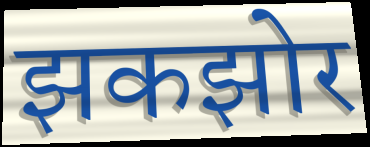
झकझोर